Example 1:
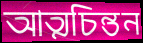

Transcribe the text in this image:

আত্মচিন্তন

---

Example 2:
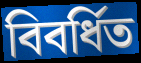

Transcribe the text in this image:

বিবর্ধিত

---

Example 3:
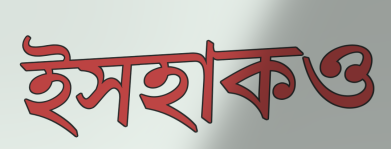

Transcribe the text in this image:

ইসহাকও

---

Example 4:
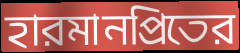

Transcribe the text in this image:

হারমানপ্রিতের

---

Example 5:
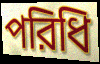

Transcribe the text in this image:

পরিধি